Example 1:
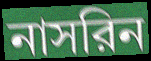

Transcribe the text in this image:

নাসরিন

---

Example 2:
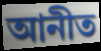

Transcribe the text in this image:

আনীত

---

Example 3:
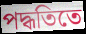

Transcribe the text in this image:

পদ্ধতিতে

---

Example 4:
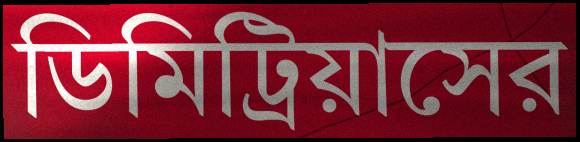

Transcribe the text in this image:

ডিমিট্রিয়াসের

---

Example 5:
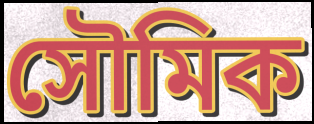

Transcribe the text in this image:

সৌমিক